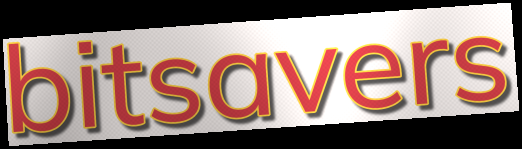
bitsavers